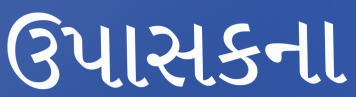
ઉપાસકના